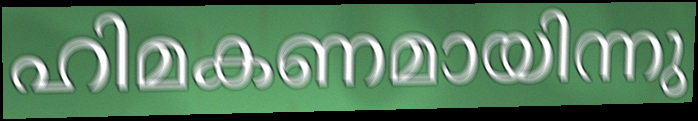
ഹിമകണമായിന്നു